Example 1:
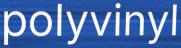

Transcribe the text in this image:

polyvinyl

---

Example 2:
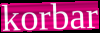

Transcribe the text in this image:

korbar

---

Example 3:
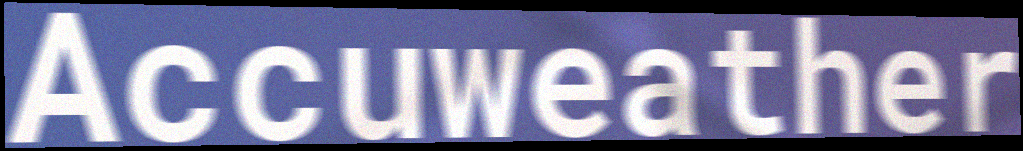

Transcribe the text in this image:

Accuweather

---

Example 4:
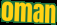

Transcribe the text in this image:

oman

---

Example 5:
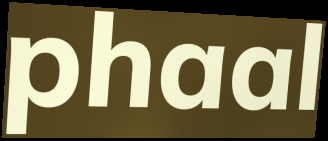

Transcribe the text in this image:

phaal